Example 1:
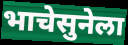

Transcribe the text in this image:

भाचेसुनेला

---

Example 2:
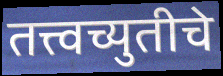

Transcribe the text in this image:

तत्त्वच्युतीचे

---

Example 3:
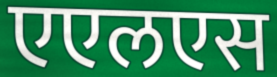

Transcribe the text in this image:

एएलएस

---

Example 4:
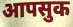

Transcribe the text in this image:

आपसुक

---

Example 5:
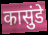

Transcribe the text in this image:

कासुंडे